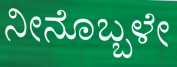
ನೀನೊಬ್ಬಳೇ